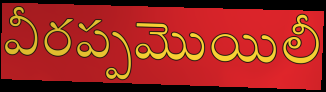
వీరప్పమొయిలీ